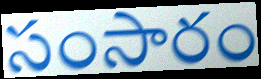
సంసారం